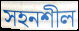
সহনশীল